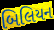
બિલિયન